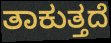
ತಾಕುತ್ತದೆ